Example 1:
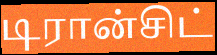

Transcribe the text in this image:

டிரான்சிட்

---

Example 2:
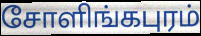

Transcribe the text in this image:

சோளிங்கபுரம்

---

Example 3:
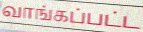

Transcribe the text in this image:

வாங்கப்பட்ட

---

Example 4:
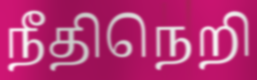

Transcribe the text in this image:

நீதிநெறி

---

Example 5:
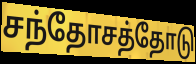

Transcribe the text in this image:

சந்தோசத்தோடு